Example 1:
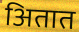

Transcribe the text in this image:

अितात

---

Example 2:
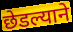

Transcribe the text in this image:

छेडल्याने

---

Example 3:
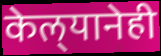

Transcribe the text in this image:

केल्यानेही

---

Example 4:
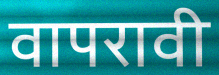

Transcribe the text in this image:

वापरावी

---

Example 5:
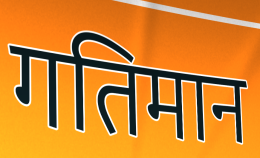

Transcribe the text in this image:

गतिमान